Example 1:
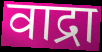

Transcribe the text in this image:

वाद्रा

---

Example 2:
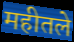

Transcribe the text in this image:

महीतले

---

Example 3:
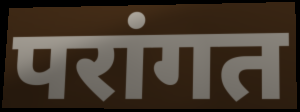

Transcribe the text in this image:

परांगत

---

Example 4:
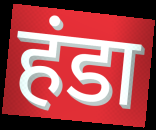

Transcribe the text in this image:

हंडा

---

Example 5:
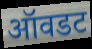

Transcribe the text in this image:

ऑवडट